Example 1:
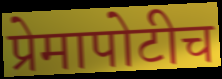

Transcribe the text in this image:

प्रेमापोटीच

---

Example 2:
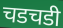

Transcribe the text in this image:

चडचडी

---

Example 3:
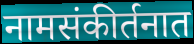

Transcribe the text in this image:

नामसंकीर्तनात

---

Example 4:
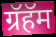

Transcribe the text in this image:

ग्रॅहॅम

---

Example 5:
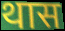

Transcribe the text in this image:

थास